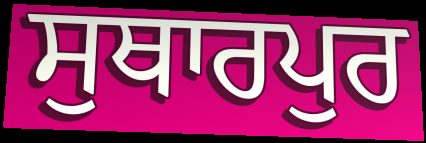
ਸੁਥਾਰਪੁਰ